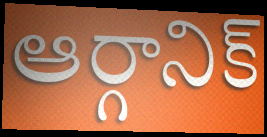
ఆర్గానిక్